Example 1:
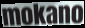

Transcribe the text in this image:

mokano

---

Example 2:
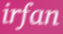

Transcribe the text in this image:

irfan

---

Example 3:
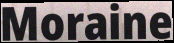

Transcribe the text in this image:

Moraine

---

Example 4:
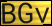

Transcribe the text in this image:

BGv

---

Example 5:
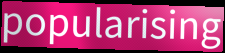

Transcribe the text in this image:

popularising